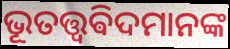
ଭୂତତ୍ତ୍ୱଵିଦମାନଙ୍କ